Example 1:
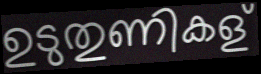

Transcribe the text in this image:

ഉടുതുണികള്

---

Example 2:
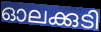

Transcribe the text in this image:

ഓലക്കുടി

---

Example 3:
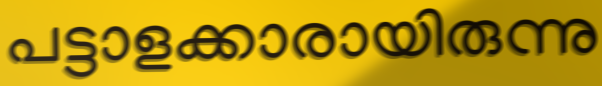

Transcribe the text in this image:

പട്ടാളക്കാരായിരുന്നു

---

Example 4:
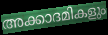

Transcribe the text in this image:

അക്കാദമികളും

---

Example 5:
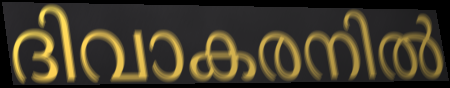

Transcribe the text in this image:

ദിവാകരനിൽ